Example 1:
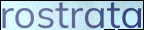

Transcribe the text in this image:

rostrata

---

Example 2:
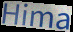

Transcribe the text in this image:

Hima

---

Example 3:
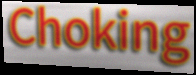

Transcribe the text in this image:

Choking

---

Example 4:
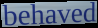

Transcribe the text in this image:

behaved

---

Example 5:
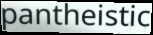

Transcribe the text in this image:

pantheistic